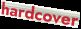
hardcover